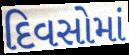
દિવસોમાં